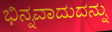
ಭಿನ್ನವಾದುದನ್ನು